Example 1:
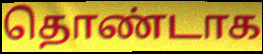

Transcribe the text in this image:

தொண்டாக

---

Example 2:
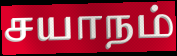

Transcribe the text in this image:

சயாநம்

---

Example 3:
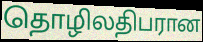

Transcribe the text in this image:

தொழிலதிபரான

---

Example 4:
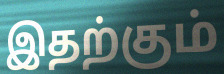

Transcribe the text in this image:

இதற்கும்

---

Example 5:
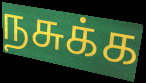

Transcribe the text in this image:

நசுக்க